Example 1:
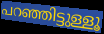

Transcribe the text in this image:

പറഞ്ഞിട്ടുള്ളൂ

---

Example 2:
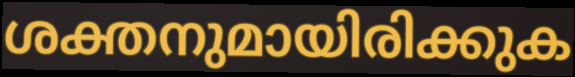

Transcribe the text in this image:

ശക്തനുമായിരിക്കുക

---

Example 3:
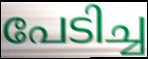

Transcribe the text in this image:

പേടിച്ച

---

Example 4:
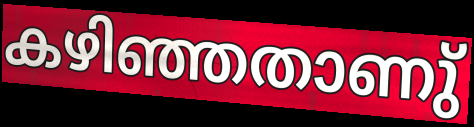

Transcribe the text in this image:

കഴിഞ്ഞതാണു്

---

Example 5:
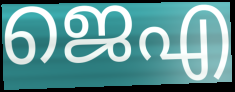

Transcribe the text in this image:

ജെഎ